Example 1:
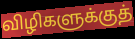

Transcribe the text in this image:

விழிகளுக்குத்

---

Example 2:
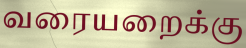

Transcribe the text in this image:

வரையறைக்கு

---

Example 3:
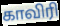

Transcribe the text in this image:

காவிரி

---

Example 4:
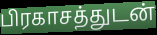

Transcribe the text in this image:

பிரகாசத்துடன்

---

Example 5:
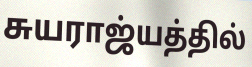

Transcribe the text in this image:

சுயராஜ்யத்தில்